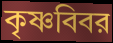
কৃষ্ণবিবর